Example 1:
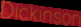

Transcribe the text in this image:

Dickinson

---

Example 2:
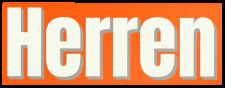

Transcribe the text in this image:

Herren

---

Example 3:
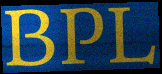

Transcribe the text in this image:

BPL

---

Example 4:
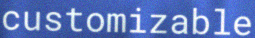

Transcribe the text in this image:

customizable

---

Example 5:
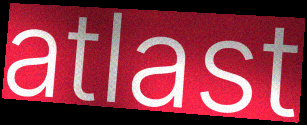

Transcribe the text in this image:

atlast